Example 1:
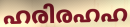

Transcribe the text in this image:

ഹരിരഹഹ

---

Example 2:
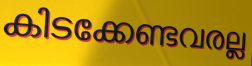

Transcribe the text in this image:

കിടക്കേണ്ടവരല്ല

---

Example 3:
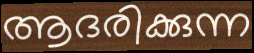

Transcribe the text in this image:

ആദരിക്കുന്ന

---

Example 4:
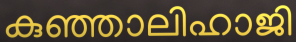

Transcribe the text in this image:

കുഞ്ഞാലിഹാജി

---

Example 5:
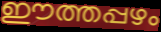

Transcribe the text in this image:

ഈത്തപ്പഴം